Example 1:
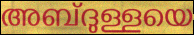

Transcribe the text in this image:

അബ്ദുള്ളയെ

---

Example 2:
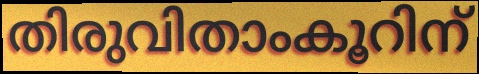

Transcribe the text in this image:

തിരുവിതാംകൂറിന്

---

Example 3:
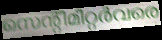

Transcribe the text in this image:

സെന്റീമീറ്റർവരെ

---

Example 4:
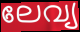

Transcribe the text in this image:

ലേവ്യ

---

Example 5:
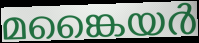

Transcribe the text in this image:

മങ്കൈയർ